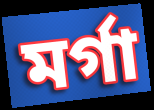
মৰ্গা